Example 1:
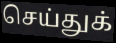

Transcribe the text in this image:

செய்துக்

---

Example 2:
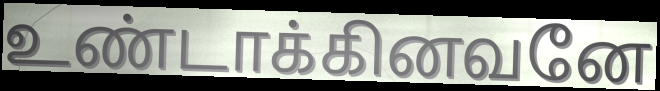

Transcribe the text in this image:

உண்டாக்கினவனே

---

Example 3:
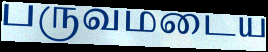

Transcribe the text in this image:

பருவமடைய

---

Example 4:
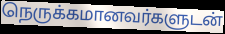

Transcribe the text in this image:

நெருக்கமானவர்களுடன்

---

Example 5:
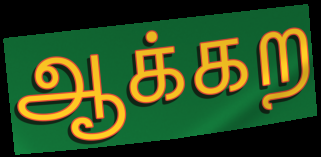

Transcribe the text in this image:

ஆக்கற